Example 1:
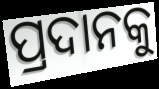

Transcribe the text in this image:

ପ୍ରଦାନକୁ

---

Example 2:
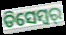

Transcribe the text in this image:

ଡିସେମ୍ବର୍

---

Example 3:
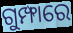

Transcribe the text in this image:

ଗୁମ୍ଫାରେ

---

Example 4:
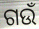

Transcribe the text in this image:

ଗଉଁ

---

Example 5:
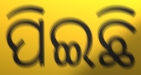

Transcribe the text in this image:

ପିଇଛି